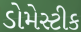
ડોમેસ્ટીક